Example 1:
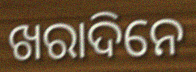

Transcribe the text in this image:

ଖରାଦିନେ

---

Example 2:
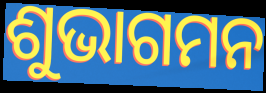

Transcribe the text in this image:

ଶୁଭାଗମନ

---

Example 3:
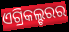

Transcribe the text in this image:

ଏଗ୍ରିକଲ୍ଚରର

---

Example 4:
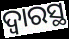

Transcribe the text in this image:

ଦ୍ବାରସ୍ଥ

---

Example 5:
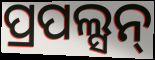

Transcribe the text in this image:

ପ୍ରପଲ୍ସନ୍